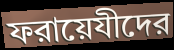
ফরায়েযীদের